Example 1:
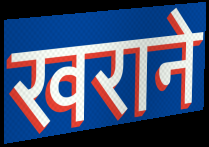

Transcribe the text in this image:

खराने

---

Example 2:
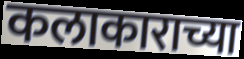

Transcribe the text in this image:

कलाकाराच्या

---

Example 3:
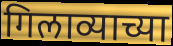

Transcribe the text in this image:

गिलाव्याच्या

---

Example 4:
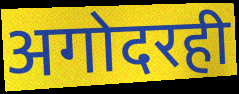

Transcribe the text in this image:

अगोदरही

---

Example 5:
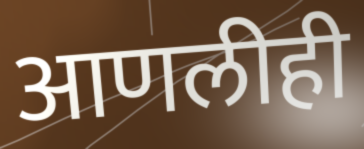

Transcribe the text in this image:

आणलीही